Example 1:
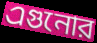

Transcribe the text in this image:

এগুনোর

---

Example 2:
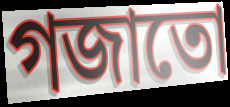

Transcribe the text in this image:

গজাতো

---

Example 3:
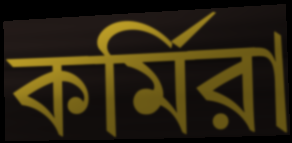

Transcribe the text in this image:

কর্মিরা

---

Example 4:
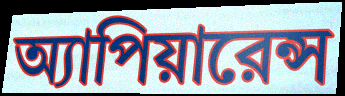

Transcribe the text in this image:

অ্যাপিয়ারেন্স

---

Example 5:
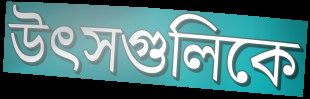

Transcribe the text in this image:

উৎসগুলিকে